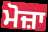
ਮੋਜ਼ਾ